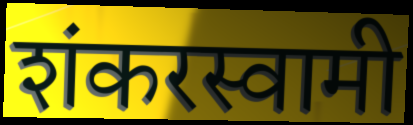
शंकरस्वामी